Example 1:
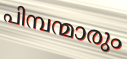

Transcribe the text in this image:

പിമ്പന്മാരും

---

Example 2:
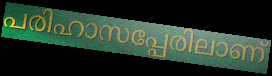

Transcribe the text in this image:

പരിഹാസപ്പേരിലാണ്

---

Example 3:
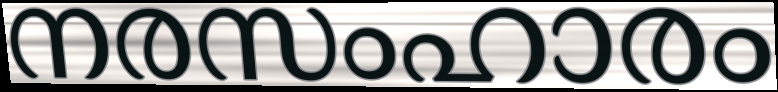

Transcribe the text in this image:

നരസംഹാരം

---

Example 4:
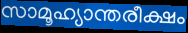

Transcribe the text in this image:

സാമൂഹ്യാന്തരീക്ഷം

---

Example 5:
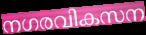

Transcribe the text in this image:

നഗരവികസന